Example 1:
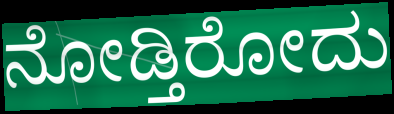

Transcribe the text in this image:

ನೋಡ್ತಿರೋದು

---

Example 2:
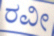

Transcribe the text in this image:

ರವೀ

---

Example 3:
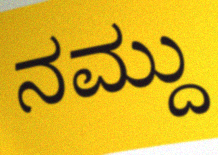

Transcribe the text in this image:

ನಮ್ದು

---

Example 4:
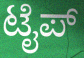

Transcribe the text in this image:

ಟೈಪ್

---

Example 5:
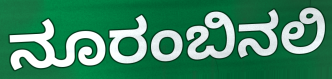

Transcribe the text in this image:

ನೂರಂಬಿನಲಿ